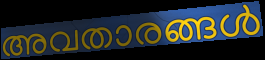
അവതാരങ്ങൾ